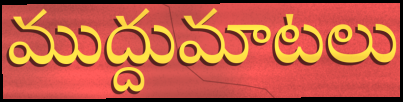
ముద్దుమాటలు